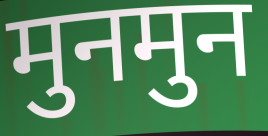
मुनमुन